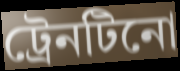
ট্রেনটিনো